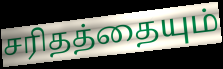
சரிதத்தையும்